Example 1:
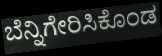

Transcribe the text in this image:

ಬೆನ್ನಿಗೇರಿಸಿಕೊಂಡ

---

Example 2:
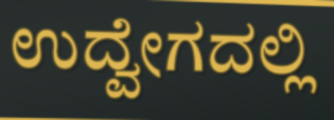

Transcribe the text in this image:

ಉದ್ವೇಗದಲ್ಲಿ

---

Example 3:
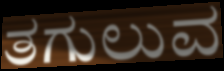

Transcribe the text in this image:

ತಗುಲುವ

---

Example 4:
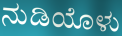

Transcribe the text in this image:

ನುಡಿಯೊಳು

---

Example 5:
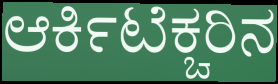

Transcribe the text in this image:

ಆರ್ಕಿಟೆಕ್ಚರಿನ